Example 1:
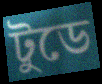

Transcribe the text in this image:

টুডে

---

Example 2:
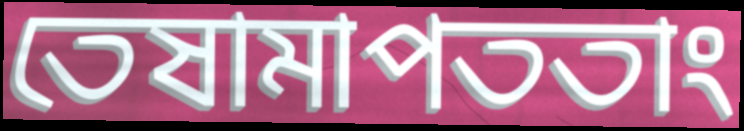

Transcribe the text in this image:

তেষামাপততাং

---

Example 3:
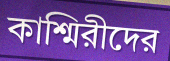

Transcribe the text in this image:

কাশ্মিরীদের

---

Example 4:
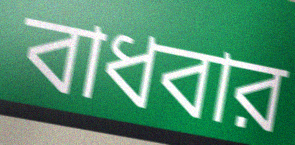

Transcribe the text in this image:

বাধবার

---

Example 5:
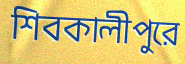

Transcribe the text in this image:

শিবকালীপুরে